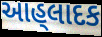
આહ્‌લાદક